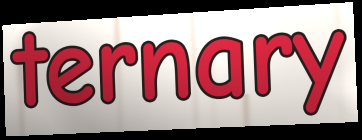
ternary